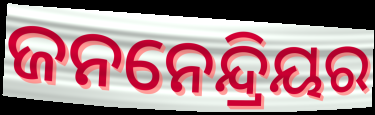
ଜନନେନ୍ଦ୍ରିୟର